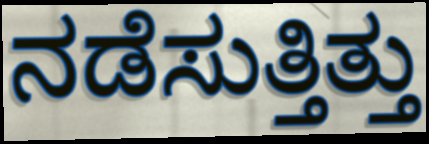
ನಡೆಸುತ್ತಿತ್ತು